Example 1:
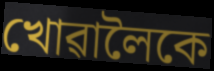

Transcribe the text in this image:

খোৱালৈকে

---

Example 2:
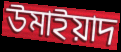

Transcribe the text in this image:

উমাইয়াদ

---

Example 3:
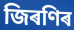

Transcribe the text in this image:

জিৰণিৰ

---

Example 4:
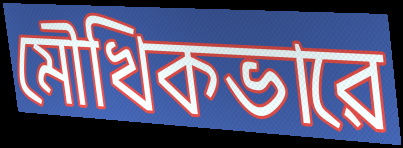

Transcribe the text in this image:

মৌখিকভাৱে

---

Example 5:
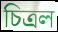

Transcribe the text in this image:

চিত্ৰল